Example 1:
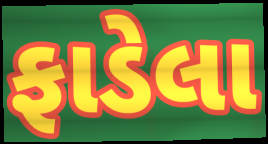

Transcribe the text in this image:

ફાડેલા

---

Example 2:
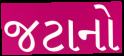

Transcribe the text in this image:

જટાનો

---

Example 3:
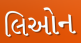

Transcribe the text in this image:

લિઓન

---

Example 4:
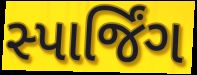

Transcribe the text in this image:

સ્પાર્જિંગ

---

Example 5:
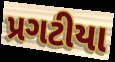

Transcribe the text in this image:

પ્રગટીયા